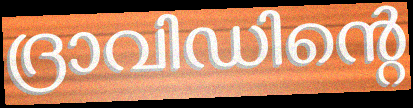
ദ്രാവിഡിന്റെ